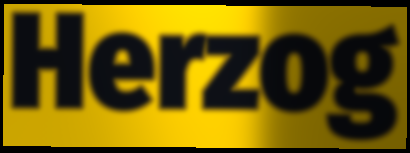
Herzog